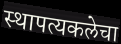
स्थापत्यकलेचा